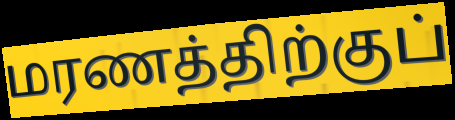
மரணத்திற்குப்